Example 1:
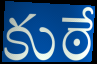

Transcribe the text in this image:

కుఠే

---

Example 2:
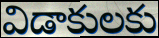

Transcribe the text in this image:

విడాకులకు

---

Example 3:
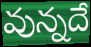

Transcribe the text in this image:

వున్నదే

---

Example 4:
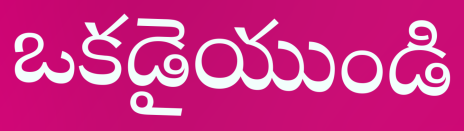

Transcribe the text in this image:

ఒకడైయుండి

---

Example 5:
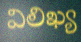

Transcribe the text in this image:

విలిఖ్య